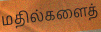
மதில்களைத்